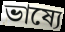
ভাষ্যে